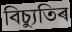
বিচ্যুতিৰ